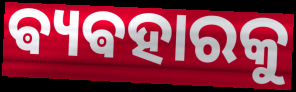
ଵ୍ୟଵହାରକୁ